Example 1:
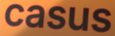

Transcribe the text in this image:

casus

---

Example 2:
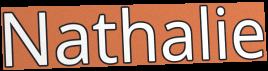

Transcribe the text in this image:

Nathalie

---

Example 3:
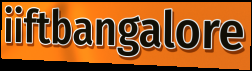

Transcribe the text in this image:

iiftbangalore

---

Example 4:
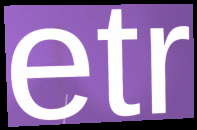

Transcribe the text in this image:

etr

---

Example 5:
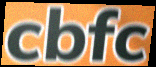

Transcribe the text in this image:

cbfc